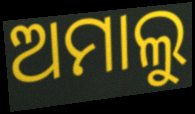
ଅମାଲୁ